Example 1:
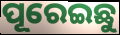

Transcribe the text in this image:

ପୂରେଇଛୁ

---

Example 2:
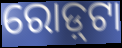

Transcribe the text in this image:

ରୋଡ଼୍‌ଟା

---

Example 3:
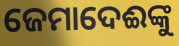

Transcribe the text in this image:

ଜେମାଦେଈଙ୍କୁ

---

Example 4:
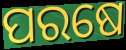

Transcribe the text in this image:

ପରଷେ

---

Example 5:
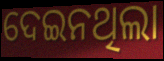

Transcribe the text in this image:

ଦେଇନଥିଲା